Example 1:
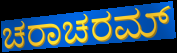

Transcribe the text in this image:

ಚರಾಚರಮ್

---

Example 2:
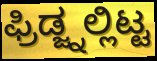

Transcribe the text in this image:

ಫ್ರಿಡ್ಜ್ನಲ್ಲಿಟ್ಟ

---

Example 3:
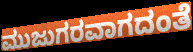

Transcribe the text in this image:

ಮುಜುಗರವಾಗದಂತೆ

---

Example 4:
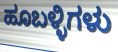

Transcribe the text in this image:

ಹೂಬಳ್ಳಿಗಳು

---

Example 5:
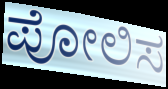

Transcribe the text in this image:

ಪೋಲಿಸ